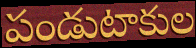
పండుటాకుల